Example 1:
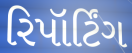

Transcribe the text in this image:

રિપૉર્ટિંગ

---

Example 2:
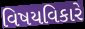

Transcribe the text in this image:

વિષયવિકારે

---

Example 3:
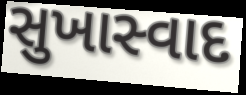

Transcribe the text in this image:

સુખાસ્વાદ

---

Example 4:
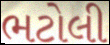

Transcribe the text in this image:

ભટોલી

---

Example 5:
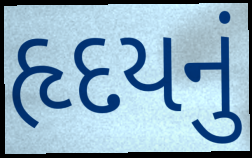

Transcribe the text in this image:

હૃદયનું